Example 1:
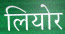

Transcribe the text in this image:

लियोर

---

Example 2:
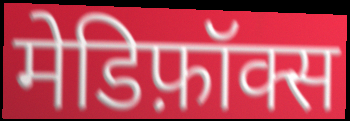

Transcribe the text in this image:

मेडिफ़ॉक्स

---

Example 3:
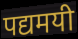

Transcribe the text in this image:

पद्यमयी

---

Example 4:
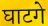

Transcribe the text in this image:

घाटगे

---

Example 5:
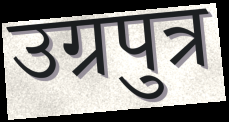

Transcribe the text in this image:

उग्रपुत्र